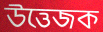
উত্তেজক